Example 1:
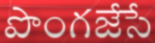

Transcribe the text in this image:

పొంగజేసే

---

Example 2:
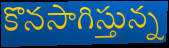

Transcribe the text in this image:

కొనసాగిస్తున్న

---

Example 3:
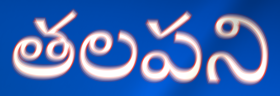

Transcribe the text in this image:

తలపని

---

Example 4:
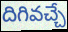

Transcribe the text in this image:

దిగివచ్చే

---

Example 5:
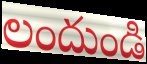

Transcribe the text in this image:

లందుండి